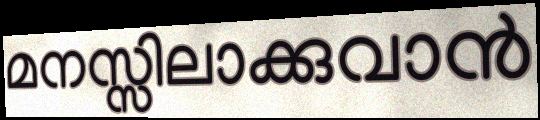
മനസ്സിലാക്കുവാൻ